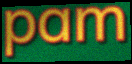
pam